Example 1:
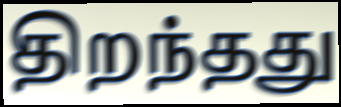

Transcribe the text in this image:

திறந்தது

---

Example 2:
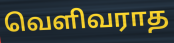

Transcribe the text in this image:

வெளிவராத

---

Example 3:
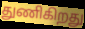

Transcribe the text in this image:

துணிகிறது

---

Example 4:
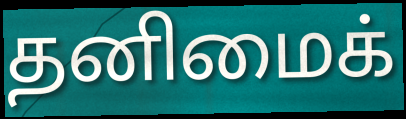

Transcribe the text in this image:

தனிமைக்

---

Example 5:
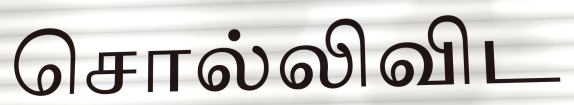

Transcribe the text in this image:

சொல்லிவிட